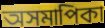
অসমাপিকা